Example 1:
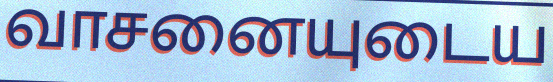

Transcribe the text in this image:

வாசனையுடைய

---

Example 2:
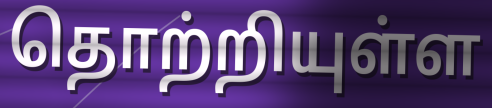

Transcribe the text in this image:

தொற்றியுள்ள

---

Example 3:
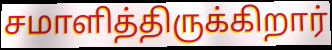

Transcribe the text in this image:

சமாளித்திருக்கிறார்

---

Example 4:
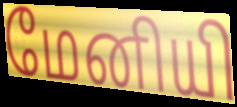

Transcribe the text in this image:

மேனியி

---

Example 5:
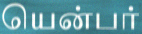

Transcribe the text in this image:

யென்பர்